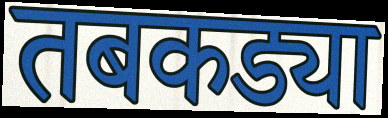
तबकड्या